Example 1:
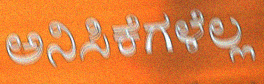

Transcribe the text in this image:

ಅನಿಸಿಕೆಗಳೆಲ್ಲ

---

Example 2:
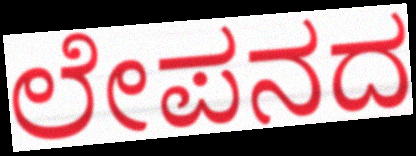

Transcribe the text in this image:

ಲೇಪನದ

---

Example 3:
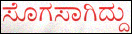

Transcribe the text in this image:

ಸೊಗಸಾಗಿದ್ದು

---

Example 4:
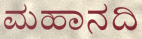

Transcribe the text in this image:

ಮಹಾನದಿ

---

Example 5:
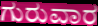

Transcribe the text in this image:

ಗುರುವಾರ